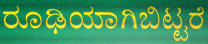
ರೂಢಿಯಾಗಿಬಿಟ್ಟರೆ